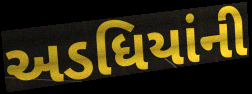
અડધિયાંની